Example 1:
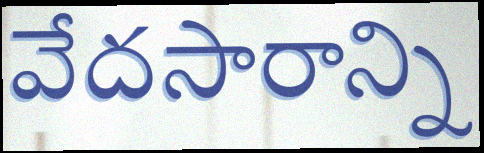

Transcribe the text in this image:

వేదసారాన్ని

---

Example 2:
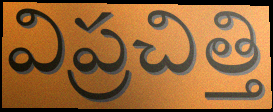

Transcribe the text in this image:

విప్రచిత్తి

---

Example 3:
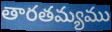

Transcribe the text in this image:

తారతమ్యము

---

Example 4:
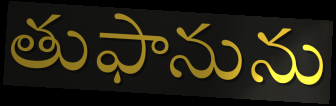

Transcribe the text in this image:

తుఫానును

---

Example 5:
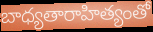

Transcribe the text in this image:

బాధ్యతారాహిత్యంతో